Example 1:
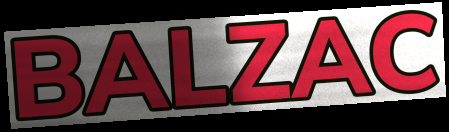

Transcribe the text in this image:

BALZAC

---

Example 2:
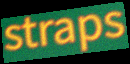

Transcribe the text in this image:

straps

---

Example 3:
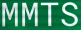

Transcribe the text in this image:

MMTS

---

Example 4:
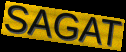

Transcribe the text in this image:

SAGAT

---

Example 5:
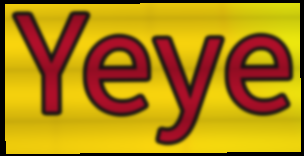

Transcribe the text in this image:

Yeye